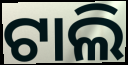
ଟାଲି